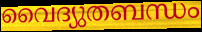
വൈദ്യുതബന്ധം